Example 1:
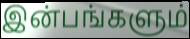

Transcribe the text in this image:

இன்பங்களும்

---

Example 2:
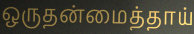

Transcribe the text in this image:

ஒருதன்மைத்தாய்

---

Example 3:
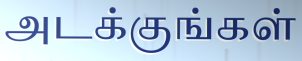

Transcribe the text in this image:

அடக்குங்கள்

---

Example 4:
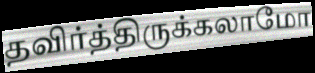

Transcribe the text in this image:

தவிர்த்திருக்கலாமோ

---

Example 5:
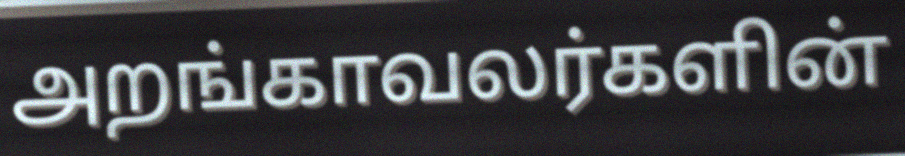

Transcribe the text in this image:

அறங்காவலர்களின்